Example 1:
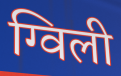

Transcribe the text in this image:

ग्विली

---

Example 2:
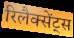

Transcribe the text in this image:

रिलैक्सेंट्स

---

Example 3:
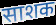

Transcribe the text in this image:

साशक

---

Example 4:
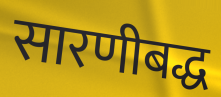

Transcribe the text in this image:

सारणीबद्ध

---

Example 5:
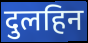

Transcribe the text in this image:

दुलहिन